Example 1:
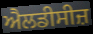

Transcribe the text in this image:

ਐਲਡੀਸੀਜ਼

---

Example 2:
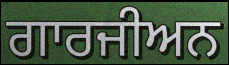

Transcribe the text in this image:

ਗਾਰਜੀਅਨ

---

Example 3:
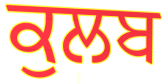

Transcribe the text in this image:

ਕੁਲਬ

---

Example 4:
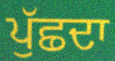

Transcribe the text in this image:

ਪੁੱਛਦਾ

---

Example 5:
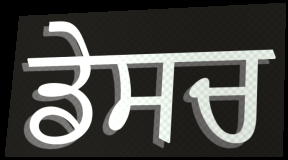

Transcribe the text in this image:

ਡੇਸਚ